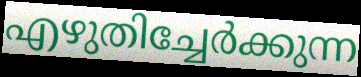
എഴുതിച്ചേർക്കുന്ന